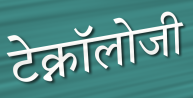
टेक्नॉलोजी